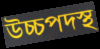
উচ্চপদস্থ